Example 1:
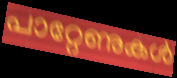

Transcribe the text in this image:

പാറ്റേണുകൾ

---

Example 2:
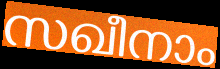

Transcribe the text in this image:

സഖീനാം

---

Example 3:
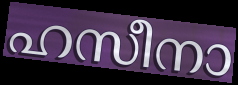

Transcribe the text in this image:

ഹസീനാ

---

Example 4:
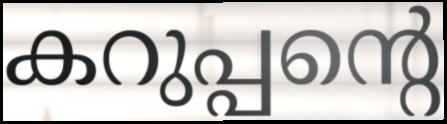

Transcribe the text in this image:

കറുപ്പന്റെ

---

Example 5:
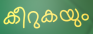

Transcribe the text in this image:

കീറുകയും